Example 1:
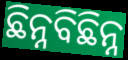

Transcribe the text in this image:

ଛିନ୍ନବିଛିନ୍ନ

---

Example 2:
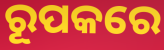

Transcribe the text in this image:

ରୂପକରେ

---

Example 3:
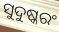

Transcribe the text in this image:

ସୁଦୁଷ୍କରଂ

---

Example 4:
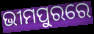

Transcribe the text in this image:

ଭୀମପୁରରେ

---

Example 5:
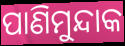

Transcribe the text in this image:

ପାଣିମୁନ୍ଦାକ